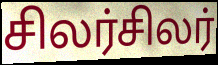
சிலர்சிலர்